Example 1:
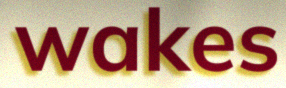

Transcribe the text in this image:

wakes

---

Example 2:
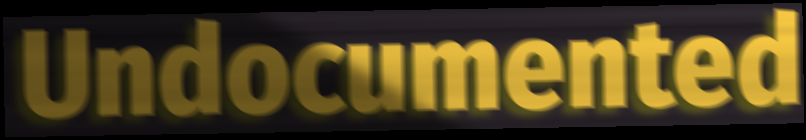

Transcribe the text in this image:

Undocumented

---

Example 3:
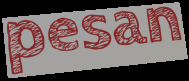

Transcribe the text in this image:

pesan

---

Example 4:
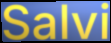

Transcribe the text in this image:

Salvi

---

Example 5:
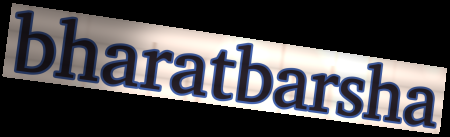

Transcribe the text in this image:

bharatbarsha